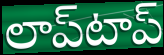
లాప్‌టాప్